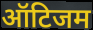
ऑटिजम